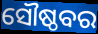
ସୌଷ୍ଠବର